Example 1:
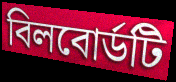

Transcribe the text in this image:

বিলবোর্ডটি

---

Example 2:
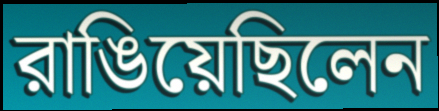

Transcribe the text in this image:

রাঙিয়েছিলেন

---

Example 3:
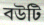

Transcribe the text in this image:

বউটি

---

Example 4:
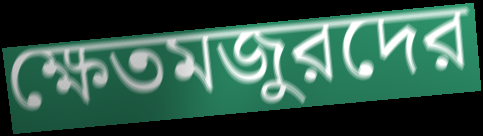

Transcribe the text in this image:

ক্ষেতমজুরদের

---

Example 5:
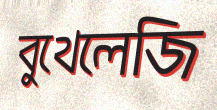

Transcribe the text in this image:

বুথেলেজি